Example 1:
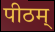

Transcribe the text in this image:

पीठम्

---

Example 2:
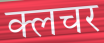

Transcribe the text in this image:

क्लचर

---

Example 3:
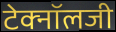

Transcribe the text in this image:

टेक्‍नॉलजी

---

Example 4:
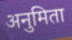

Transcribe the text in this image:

अनुमिता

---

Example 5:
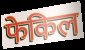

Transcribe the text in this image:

फेकिल